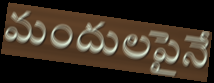
మందులపైనే